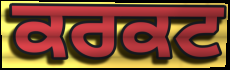
ਕਰਕਟ